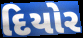
દિયોર